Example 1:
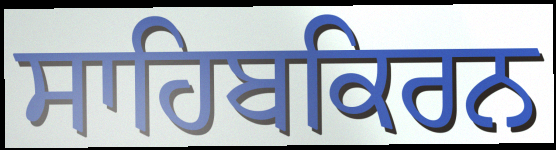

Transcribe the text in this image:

ਸਾਹਿਬਕਿਰਨ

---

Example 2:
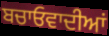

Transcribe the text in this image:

ਬਚਾਓਵਾਦੀਆਂ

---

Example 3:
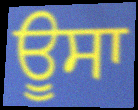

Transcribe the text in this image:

ਊਸਾ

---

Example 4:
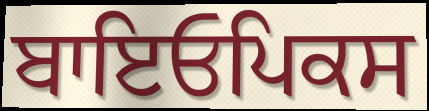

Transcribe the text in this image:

ਬਾਇਓਪਿਕਸ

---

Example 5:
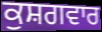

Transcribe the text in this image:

ਕੁਸ਼ਗਵਾਰ